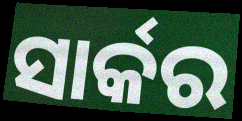
ସାର୍କର